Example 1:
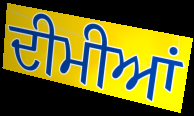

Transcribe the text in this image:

ਦੀਮੀਆਂ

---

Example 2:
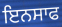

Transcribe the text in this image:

ਇਨਸਾਫ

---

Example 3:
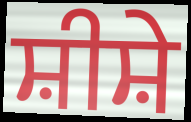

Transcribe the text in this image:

ਸ਼ੀਸ਼ੇ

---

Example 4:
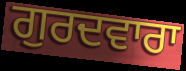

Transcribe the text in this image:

ਗੁਰਦਵਾਰਾ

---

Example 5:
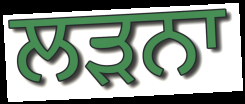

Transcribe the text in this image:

ਲੜਨਾ